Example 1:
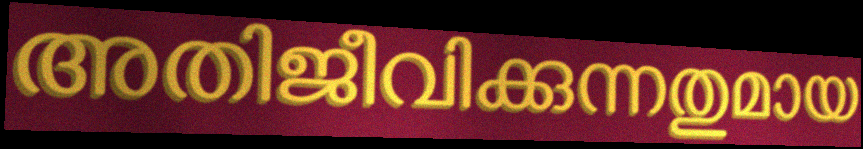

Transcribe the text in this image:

അതിജീവിക്കുന്നതുമായ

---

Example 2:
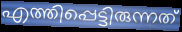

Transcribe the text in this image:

എത്തിപ്പെട്ടിരുന്നത്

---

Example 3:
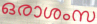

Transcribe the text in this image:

ഒരാശംസ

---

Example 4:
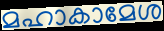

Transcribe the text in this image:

മഹാകാമേശ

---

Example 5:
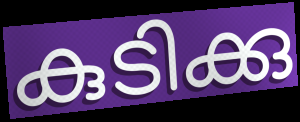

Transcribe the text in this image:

കുടിക്കു